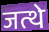
जत्थे